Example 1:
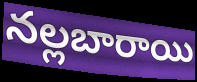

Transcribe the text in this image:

నల్లబారాయి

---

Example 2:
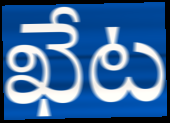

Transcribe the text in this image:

ఖేట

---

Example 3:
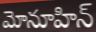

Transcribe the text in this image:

మోనూహిన్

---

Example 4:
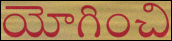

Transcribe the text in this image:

యోగించి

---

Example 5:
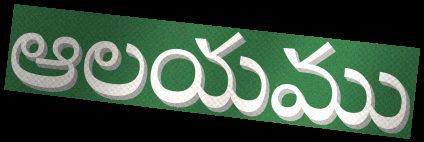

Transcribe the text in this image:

ఆలయము